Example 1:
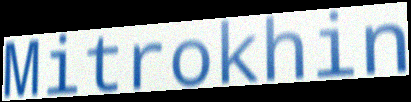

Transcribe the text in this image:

Mitrokhin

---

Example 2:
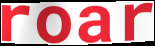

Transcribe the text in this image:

roar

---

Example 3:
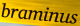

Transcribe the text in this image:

braminus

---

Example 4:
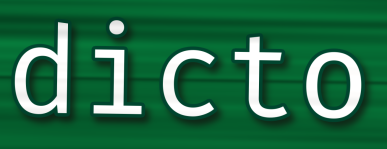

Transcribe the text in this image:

dicto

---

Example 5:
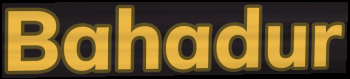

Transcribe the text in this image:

Bahadur